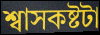
শ্বাসকষ্টটা